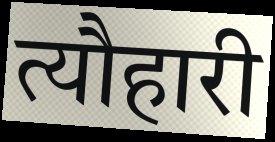
त्यौहारी